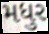
મધુર